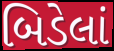
બિડેલાં